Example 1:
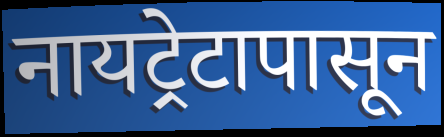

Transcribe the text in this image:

नायट्रेटापासून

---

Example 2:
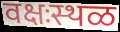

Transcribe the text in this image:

वक्षःस्थळ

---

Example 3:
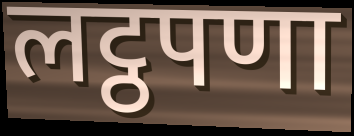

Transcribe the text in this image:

लट्ठपणा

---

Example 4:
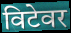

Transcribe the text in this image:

विटेवर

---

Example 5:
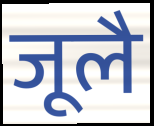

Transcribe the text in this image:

जूलै